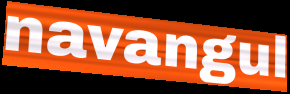
navangul